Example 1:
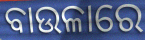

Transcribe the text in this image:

ବାଉଳାରେ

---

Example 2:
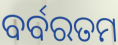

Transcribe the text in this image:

ବର୍ବରତମ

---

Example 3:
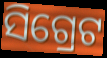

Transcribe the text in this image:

ସିଗ୍ରେଟ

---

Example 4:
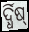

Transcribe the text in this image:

ର୍ଦ୍ଧିଷ୍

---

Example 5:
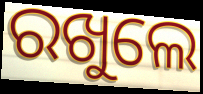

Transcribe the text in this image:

ରଖୁଲେ